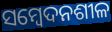
ସମ୍ବେଦନଶୀଳ